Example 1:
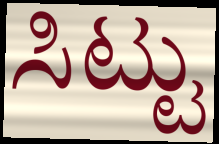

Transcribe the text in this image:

ಸಿಟ್ಟು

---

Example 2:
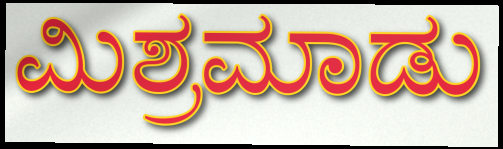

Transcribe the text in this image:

ಮಿಶ್ರಮಾಡು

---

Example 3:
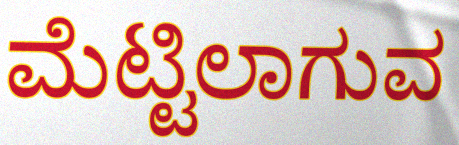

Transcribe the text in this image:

ಮೆಟ್ಟಿಲಾಗುವ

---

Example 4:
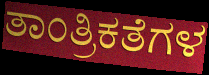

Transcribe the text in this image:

ತಾಂತ್ರಿಕತೆಗಳ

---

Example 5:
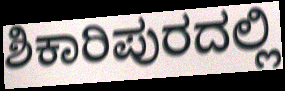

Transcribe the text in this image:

ಶಿಕಾರಿಪುರದಲ್ಲಿ